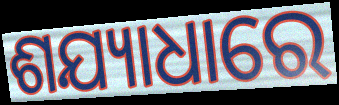
ଶଯ୍ୟାଧାରେ